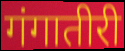
गंगातीरी